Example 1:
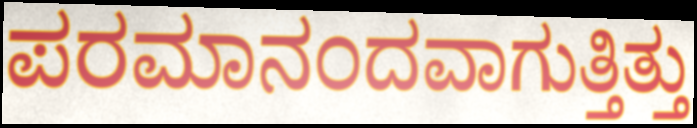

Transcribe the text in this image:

ಪರಮಾನಂದವಾಗುತ್ತಿತ್ತು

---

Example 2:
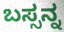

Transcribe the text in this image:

ಬಸ್ಸನ್ನ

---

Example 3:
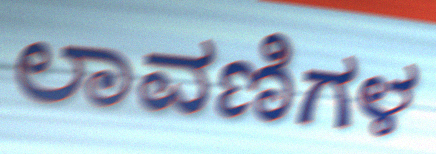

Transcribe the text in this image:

ಲಾವಣಿಗಳ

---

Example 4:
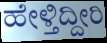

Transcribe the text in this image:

ಹೇಳ್ತಿದ್ದೀರಿ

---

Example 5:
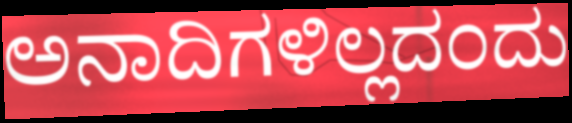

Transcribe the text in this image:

ಅನಾದಿಗಳಿಲ್ಲದಂದು